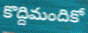
కొద్దిమందికో